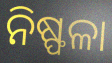
ନିଷ୍ଫଳା